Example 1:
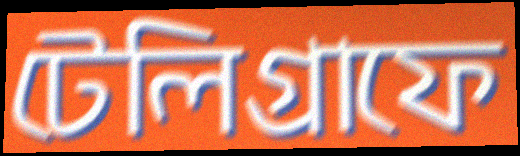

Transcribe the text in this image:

টেলিগ্রাফে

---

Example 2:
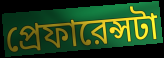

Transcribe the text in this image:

প্রেফারেন্সটা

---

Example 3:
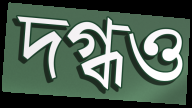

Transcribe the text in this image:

দগ্ধও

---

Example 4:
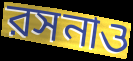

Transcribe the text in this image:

রসনাও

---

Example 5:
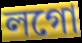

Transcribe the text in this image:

লগো